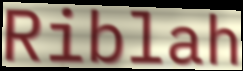
Riblah